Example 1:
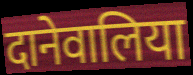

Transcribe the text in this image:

दानेवालिया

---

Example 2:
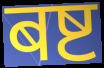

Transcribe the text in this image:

बष्ट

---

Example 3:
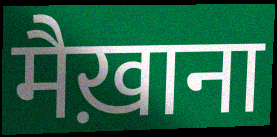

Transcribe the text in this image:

मैख़ाना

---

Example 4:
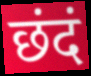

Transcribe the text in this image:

छंदं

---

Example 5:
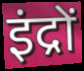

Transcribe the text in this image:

इंद्रों